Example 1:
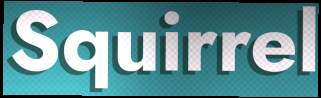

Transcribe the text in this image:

Squirrel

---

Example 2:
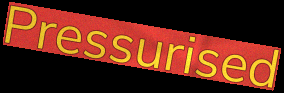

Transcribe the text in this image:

Pressurised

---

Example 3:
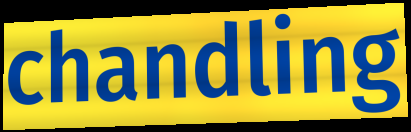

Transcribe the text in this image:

chandling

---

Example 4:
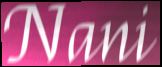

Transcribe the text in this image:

Nani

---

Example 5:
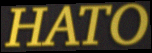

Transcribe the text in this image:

HATO